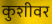
कुशीवर